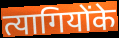
त्यागियोंके